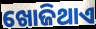
ଖୋଜିଥାଏ